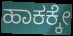
ಹಾಕಕ್ಕೇ